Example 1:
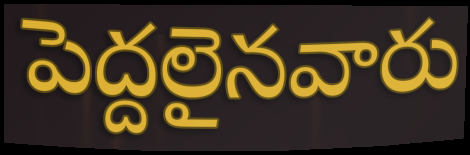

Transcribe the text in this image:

పెద్దలైనవారు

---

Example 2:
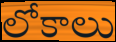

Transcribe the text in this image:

లోకాలు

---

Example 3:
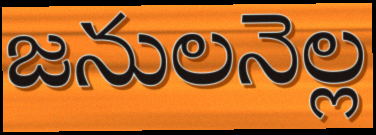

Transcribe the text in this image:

జనులనెల్ల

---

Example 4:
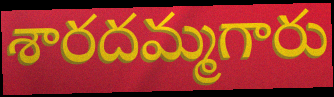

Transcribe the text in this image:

శారదమ్మగారు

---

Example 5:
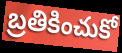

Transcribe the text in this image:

బ్రతికించుకో